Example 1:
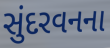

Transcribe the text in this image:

સુંદરવનના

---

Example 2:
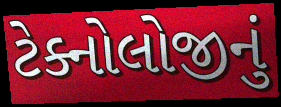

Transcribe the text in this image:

ટેક્નોલોજીનું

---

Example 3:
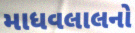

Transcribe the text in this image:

માધવલાલનો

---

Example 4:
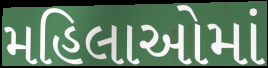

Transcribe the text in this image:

મહિલાઓમાં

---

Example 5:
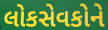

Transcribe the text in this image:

લોકસેવકોને